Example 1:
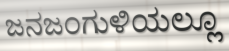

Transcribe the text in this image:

ಜನಜಂಗುಳಿಯಲ್ಲೂ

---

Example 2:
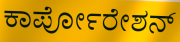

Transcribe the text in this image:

ಕಾರ್ಪೋರೇಶನ್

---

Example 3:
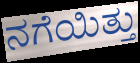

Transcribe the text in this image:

ನಗೆಯಿತ್ತು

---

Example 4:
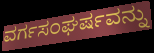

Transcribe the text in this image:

ವರ್ಗಸಂಘರ್ಷವನ್ನು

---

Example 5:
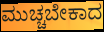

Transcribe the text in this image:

ಮುಚ್ಚಬೇಕಾದ